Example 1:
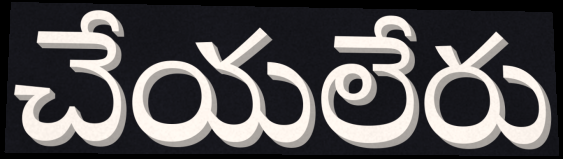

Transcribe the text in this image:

చేయలేరు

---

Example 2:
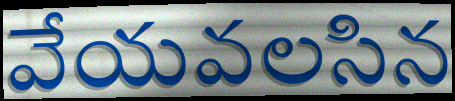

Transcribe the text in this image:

వేయవలసిన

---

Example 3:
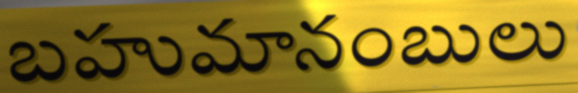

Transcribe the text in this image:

బహుమానంబులు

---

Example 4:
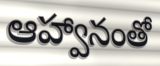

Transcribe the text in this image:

ఆహ్వానంతో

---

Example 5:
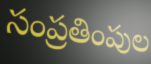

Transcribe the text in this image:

సంప్రతింపుల